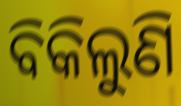
ବିକିଲୁଣି